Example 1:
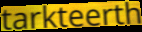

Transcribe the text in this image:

tarkteerth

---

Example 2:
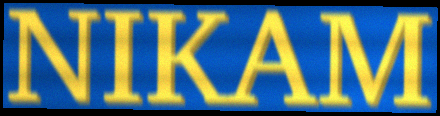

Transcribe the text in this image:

NIKAM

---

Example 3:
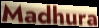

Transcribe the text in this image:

Madhura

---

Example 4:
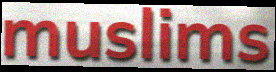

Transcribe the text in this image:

muslims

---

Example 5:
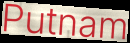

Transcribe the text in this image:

Putnam